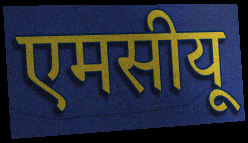
एमसीयू